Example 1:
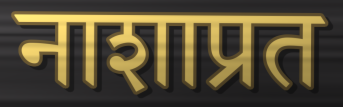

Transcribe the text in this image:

नाशाप्रत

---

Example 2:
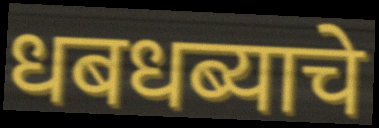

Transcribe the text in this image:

धबधब्याचे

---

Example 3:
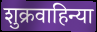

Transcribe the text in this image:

शुक्रवाहिन्या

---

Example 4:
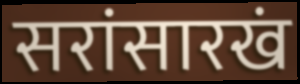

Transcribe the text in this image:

सरांसारखं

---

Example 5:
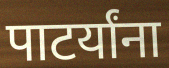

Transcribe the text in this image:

पाटर्यांना